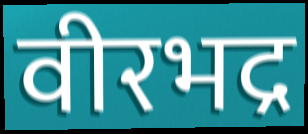
वीरभद्र